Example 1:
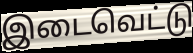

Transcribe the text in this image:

இடைவெட்டு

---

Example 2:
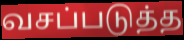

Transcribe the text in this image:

வசப்படுத்த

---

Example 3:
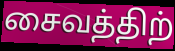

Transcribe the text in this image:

சைவத்திற்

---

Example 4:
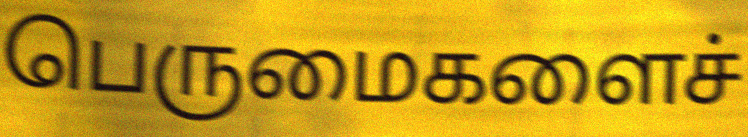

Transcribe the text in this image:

பெருமைகளைச்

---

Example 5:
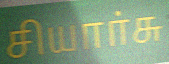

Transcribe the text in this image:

சியார்சு